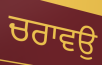
ਚਰਾਵਉ